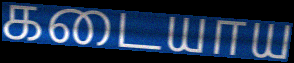
கடையாய